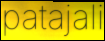
patajali